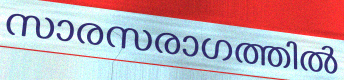
സാരസരാഗത്തിൽ